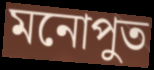
মনোপুত